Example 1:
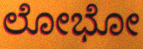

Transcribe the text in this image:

ಲೋಭೋ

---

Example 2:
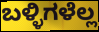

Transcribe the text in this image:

ಬಳ್ಳಿಗಳೆಲ್ಲ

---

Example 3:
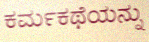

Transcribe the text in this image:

ಕರ್ಮಕಥೆಯನ್ನು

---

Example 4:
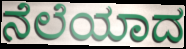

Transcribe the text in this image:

ನೆಲೆಯಾದ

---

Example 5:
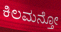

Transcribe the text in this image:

ಕಿಲಮನ್ತೋ